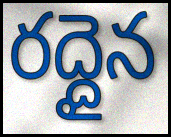
రద్దైన